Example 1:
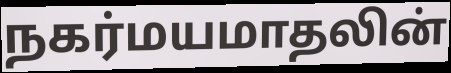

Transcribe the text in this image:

நகர்மயமாதலின்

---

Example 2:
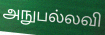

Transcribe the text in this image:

அநுபல்லவி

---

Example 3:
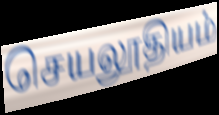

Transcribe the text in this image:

செயலூதியம்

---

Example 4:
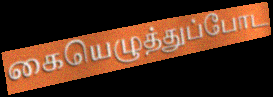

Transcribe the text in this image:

கையெழுத்துப்போட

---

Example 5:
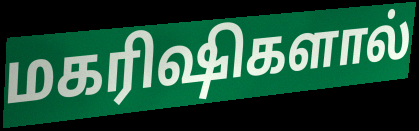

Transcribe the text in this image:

மகரிஷிகளால்